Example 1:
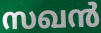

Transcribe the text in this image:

സഖൻ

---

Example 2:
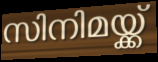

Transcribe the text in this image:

സിനിമയ്ക്ക്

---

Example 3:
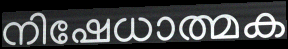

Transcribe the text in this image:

നിഷേധാത്മക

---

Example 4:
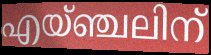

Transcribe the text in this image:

എയ്ഞ്ചലിന്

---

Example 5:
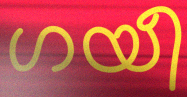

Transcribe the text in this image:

ഗയീ